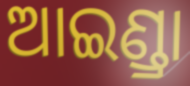
ଆଇଣ୍ଡ୍ରା